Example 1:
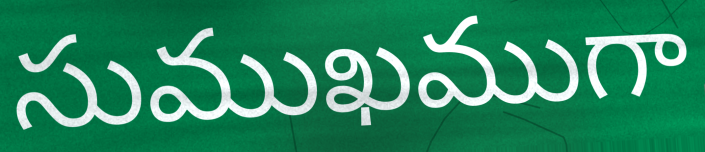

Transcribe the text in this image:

సుముఖముగా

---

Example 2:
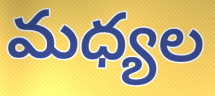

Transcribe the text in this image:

మధ్యల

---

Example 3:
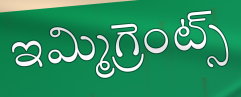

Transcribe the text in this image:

ఇమ్మిగ్రెంట్స్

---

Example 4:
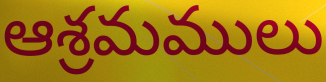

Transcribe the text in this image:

ఆశ్రమములు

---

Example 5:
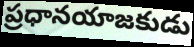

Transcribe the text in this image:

ప్రధానయాజకుడు